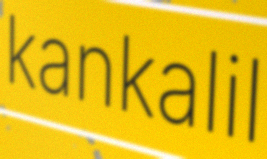
kankalil